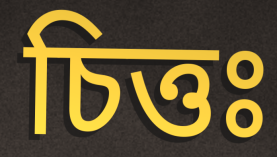
চিত্তঃ